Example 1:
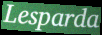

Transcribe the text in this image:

Lesparda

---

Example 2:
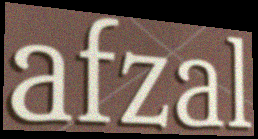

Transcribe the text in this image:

afzal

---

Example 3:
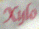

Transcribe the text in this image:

Xylo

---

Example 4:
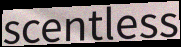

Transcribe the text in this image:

scentless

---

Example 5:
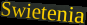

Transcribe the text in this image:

Swietenia